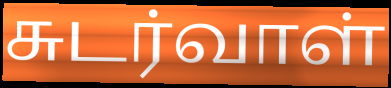
சுடர்வாள்